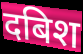
दबिश